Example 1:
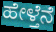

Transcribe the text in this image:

ಹೇಳ್ತೆನೆ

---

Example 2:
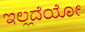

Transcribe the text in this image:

ಇಲ್ಲದೆಯೋ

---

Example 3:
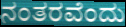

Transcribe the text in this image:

ನಂತರವೆಂದು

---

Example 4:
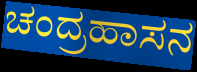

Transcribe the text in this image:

ಚಂದ್ರಹಾಸನ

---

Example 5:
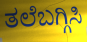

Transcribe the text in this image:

ತಲೆಬಗ್ಗಿಸಿ